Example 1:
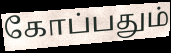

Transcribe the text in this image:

கோப்பதும்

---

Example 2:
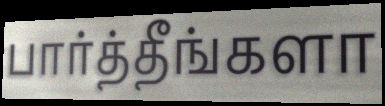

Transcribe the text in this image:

பார்த்தீங்களா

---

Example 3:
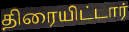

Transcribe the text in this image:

திரையிட்டார்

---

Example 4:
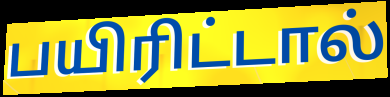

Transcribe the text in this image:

பயிரிட்டால்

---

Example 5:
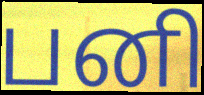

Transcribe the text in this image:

பனி